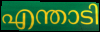
എന്താടി